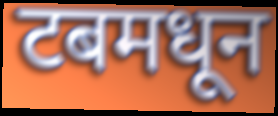
टबमधून